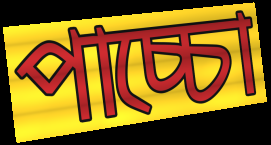
পাচ্চো